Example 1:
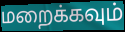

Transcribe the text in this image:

மறைக்கவும்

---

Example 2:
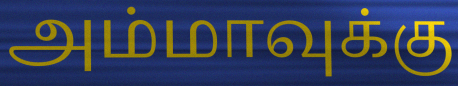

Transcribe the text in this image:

அம்மாவுக்கு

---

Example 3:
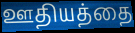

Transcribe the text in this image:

ஊதியத்தை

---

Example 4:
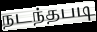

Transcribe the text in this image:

நடந்தபடி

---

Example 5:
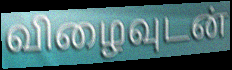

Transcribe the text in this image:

விழைவுடன்